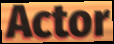
Actor